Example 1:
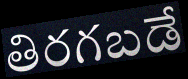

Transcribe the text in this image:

తిరగబడే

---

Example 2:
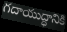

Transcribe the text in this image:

గదాయుద్ధానికి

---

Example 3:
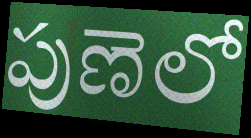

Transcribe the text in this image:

పుణెలో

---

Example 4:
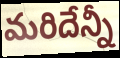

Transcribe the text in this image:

మరిదేన్నీ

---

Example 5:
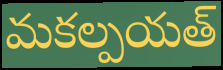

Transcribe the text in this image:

మకల్పయత్